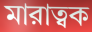
মারাত্বক